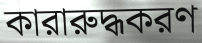
কারারুদ্ধকরণ